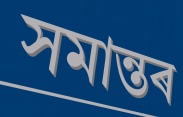
সমান্তৰ